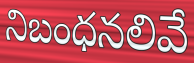
నిబంధనలివే